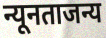
न्यूनताजन्य